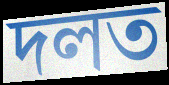
দলত